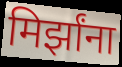
मिर्झांना